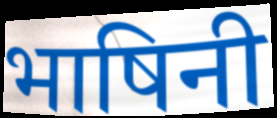
भाषिनी